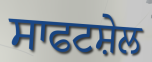
ਸਾਫਟਸ਼ੇਲ